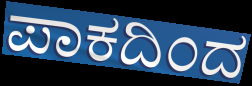
ಪಾಕದಿಂದ